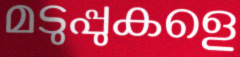
മടുപ്പുകളെ